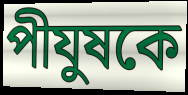
পীযুষকে